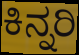
ಕಿನ್ನರಿ